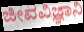
ಜೀವವಿಜ್ಞಾನಿ